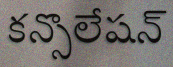
కన్సొలేషన్